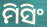
ମିସିଂ